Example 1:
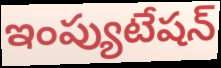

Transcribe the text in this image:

ఇంప్యుటేషన్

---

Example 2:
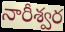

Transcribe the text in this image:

నారీశ్వర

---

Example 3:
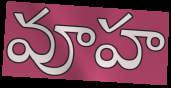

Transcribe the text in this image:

వూహ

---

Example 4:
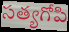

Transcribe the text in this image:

సత్యగోపి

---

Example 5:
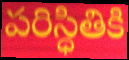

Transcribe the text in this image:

పరిస్ధితికి